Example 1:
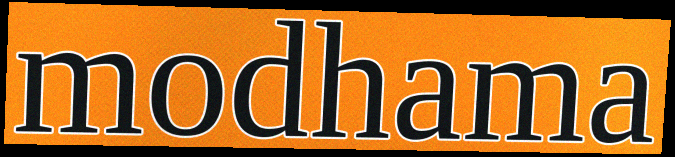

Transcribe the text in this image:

modhama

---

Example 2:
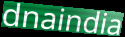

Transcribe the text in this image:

dnaindia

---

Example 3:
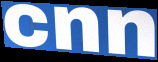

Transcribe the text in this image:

cnn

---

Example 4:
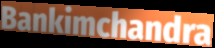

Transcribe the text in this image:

Bankimchandra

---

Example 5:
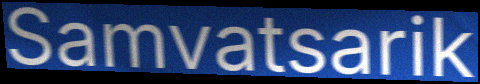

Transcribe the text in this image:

Samvatsarik